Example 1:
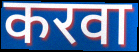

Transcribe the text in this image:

करवा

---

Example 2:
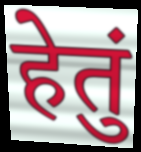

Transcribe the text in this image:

हेतुं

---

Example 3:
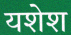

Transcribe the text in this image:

यशेश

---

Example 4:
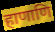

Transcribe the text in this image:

हाणाणि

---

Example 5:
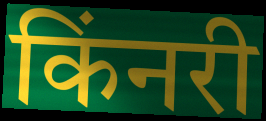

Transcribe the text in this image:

किंनरी